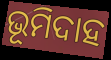
ଭୂମିଦାହ